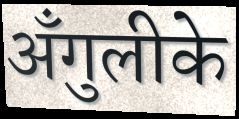
अँगुलीके